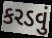
કરડવું